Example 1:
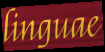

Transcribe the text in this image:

linguae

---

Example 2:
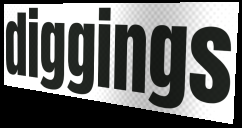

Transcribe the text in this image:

diggings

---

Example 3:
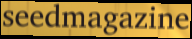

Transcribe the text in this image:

seedmagazine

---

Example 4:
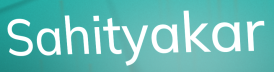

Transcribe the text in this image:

Sahityakar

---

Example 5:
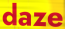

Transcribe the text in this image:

daze